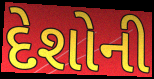
દેશોની